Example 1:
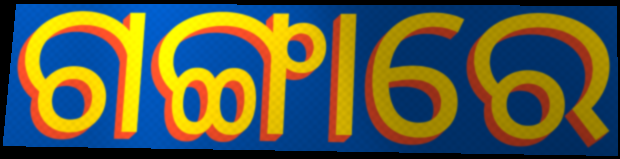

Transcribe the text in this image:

ଗଙ୍ଗାରେ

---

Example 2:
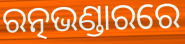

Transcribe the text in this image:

ରତ୍ନଭଣ୍ଡାରରେ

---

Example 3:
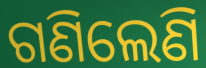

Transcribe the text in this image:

ଗଣିଲେଣି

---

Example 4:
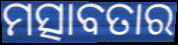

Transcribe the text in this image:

ମତ୍ସାବତାର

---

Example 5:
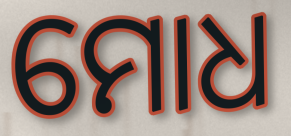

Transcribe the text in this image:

ମୋଧ